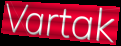
Vartak